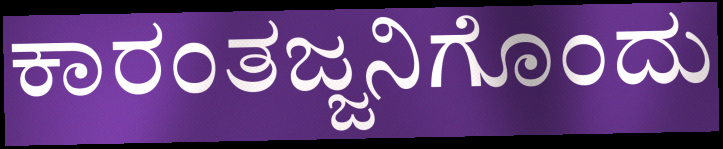
ಕಾರಂತಜ್ಜನಿಗೊಂದು